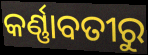
କର୍ଣ୍ଣାବତୀରୁ